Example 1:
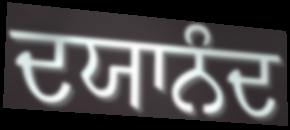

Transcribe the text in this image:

ਦਯਾਨੰਦ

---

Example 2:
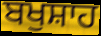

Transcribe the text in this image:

ਬਖੁਸ਼ਾਹ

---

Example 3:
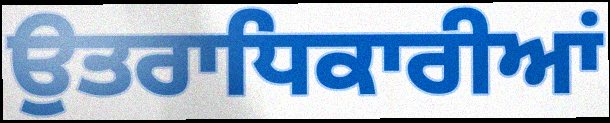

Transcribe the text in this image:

ਉਤਰਾਧਿਕਾਰੀਆਂ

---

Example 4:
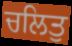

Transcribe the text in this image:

ਚਲਿਤੁ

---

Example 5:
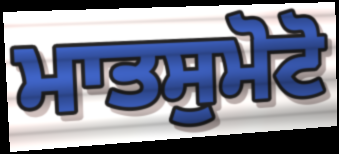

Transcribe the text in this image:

ਮਾਤਸੁਮੋਟੋ